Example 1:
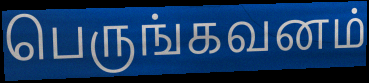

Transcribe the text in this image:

பெருங்கவனம்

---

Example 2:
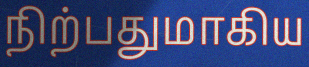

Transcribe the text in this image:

நிற்பதுமாகிய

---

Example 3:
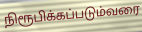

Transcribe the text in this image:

நிரூபிக்கப்படும்வரை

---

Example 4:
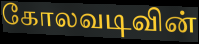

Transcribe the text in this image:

கோலவடிவின்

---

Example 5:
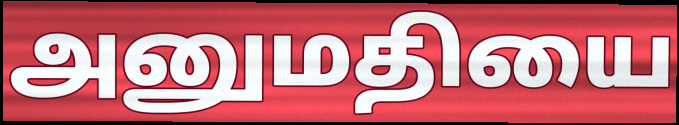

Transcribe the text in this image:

அனுமதியை